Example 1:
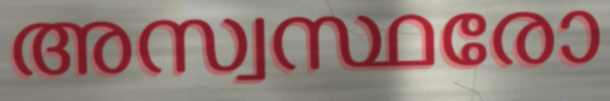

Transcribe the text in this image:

അസ്വസ്ഥരോ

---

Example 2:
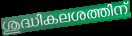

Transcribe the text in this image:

ശുദ്ധികലശത്തിന്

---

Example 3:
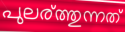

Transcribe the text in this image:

പുലര്ത്തുന്നത്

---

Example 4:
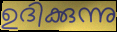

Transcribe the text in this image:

ഉദിക്കുന്നു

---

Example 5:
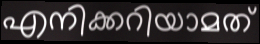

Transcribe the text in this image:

എനിക്കറിയാമത്